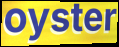
oyster